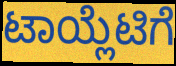
ಟಾಯ್ಲೆಟಿಗೆ